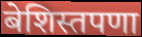
बेशिस्तपणा